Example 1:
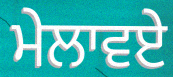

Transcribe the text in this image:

ਮੇਲਾਵਏ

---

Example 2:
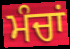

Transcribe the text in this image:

ਮੰਚਾਂ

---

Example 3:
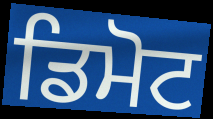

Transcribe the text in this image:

ਡਿਮੋਟ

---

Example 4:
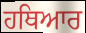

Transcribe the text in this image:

ਹਥਿਆਰ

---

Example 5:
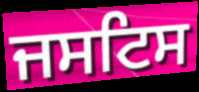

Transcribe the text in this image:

ਜਸਟਿਸ